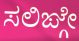
ಸಲಿಙ್ಗೇ